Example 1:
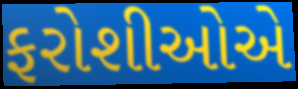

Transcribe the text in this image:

ફરોશીઓએ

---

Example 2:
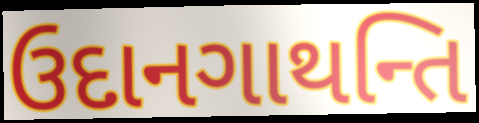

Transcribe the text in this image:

ઉદાનગાથન્તિ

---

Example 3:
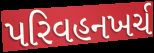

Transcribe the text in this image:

પરિવહનખર્ચ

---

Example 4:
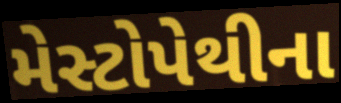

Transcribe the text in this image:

મેસ્ટોપેથીના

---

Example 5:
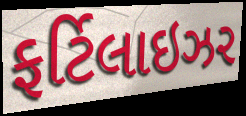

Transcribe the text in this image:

ફર્ટિલાઇઝર